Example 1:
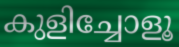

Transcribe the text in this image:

കുളിച്ചോളൂ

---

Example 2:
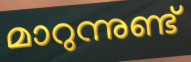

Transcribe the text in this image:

മാറുന്നുണ്ട്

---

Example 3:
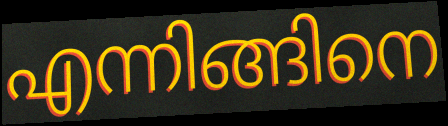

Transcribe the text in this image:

എന്നിങ്ങിനെ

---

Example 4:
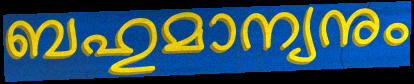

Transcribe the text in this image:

ബഹുമാന്യനും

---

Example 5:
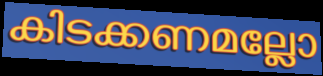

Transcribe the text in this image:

കിടക്കണമല്ലോ